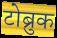
टोब्रुक